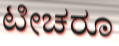
ಟೀಚರೂ